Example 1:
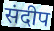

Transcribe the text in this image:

संदीप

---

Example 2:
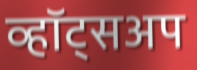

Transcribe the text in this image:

व्हॉट्सअप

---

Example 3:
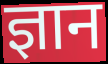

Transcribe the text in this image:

ज्ञान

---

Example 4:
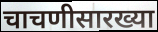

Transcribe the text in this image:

चाचणीसारख्या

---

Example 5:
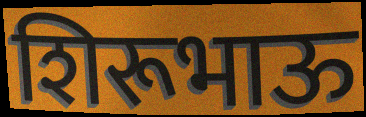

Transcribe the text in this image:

शिरूभाऊ